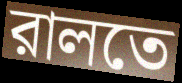
রালতে